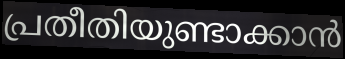
പ്രതീതിയുണ്ടാക്കാൻ